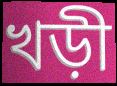
খড়ী